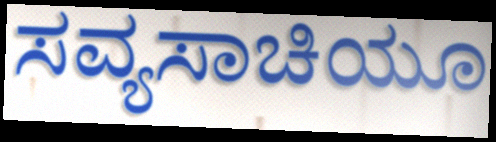
ಸವ್ಯಸಾಚಿಯೂ